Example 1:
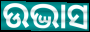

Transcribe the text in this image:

ଉଦ୍ଭାସ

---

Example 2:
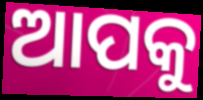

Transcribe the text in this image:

ଆପକୁ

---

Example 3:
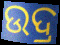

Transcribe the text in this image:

ଉଦ୍ର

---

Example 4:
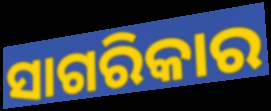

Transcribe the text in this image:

ସାଗରିକାର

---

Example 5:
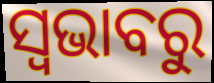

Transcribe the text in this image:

ସ୍ୱଭାବରୁ